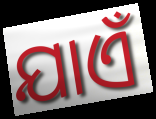
ଯାଏଁ